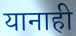
यानाही